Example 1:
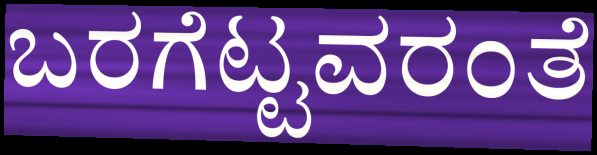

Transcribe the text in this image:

ಬರಗೆಟ್ಟವರಂತೆ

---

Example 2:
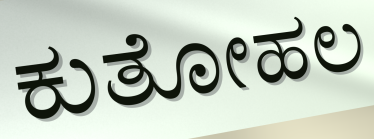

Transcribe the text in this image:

ಕುತೋಹಲ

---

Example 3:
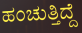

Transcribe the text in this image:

ಹಂಚುತ್ತಿದ್ದೆ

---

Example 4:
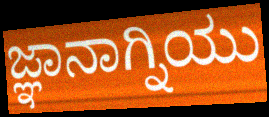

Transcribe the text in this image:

ಜ್ಞಾನಾಗ್ನಿಯು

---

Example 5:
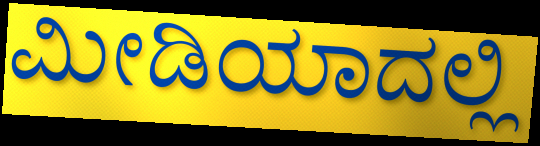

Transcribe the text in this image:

ಮೀಡಿಯಾದಲ್ಲಿ